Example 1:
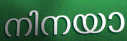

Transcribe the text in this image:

നിനയാ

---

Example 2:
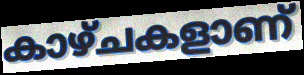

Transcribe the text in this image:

കാഴ്ചകളാണ്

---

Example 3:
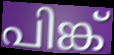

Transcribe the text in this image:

പിങ്ക്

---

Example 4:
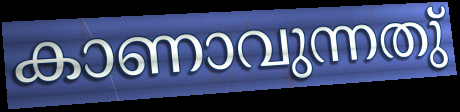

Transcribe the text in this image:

കാണാവുന്നതു്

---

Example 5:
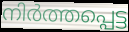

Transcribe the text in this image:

നിർത്തപ്പെട്ട